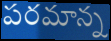
పరమాన్న